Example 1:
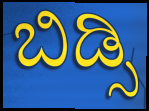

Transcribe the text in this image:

ಬಿಡ್ಸಿ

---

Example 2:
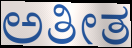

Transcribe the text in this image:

ಅತೀತ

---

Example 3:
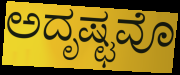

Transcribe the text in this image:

ಅದೃಷ್ಟವೊ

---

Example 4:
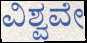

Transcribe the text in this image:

ವಿಶ್ವವೇ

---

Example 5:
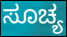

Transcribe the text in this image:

ಸೂಚ್ಯ